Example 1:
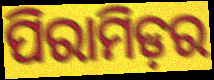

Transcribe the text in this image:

ପିରାମିଡ଼ର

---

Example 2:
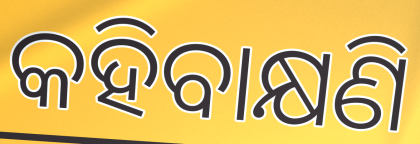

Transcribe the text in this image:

କହିବାକ୍ଷଣି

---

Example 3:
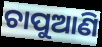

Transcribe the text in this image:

ଚାପୁଆଣି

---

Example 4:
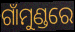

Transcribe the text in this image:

ଗାଁମୁଣ୍ଡରେ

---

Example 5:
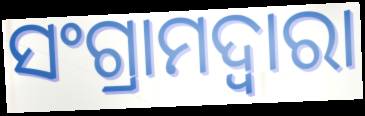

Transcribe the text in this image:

ସଂଗ୍ରାମଦ୍ଵାରା